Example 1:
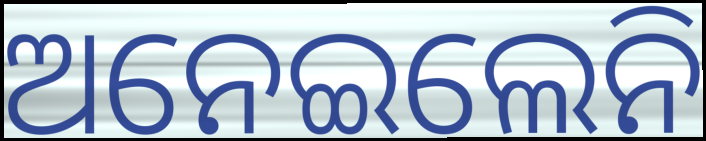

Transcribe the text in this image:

ଅନେଇଲେନି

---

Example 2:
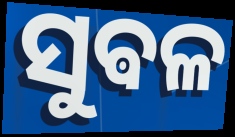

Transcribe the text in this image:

ସୁଵଳ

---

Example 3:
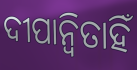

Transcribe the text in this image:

ଦୀପାନ୍ୱିତାହିଁ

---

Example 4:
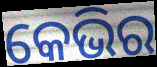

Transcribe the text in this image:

କେଭିର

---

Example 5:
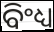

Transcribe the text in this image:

ବିଂଧ୍ୟ